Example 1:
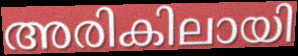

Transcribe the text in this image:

അരികിലായി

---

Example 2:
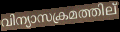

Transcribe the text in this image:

വിന്യാസക്രമത്തില്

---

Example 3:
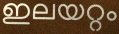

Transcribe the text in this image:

ഇലയറ്റം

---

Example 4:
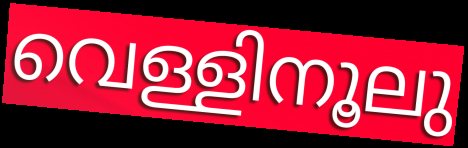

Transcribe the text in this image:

വെള്ളിനൂലു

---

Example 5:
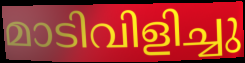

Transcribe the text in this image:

മാടിവിളിച്ചു